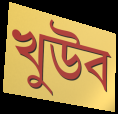
খুউব